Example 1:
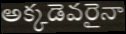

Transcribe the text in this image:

అక్కడెవరైనా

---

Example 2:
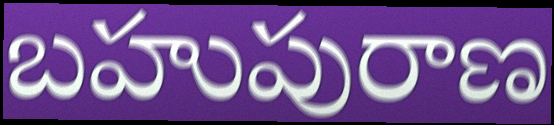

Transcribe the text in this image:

బహుపురాణ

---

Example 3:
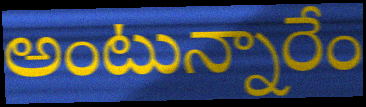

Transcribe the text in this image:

అంటున్నారేం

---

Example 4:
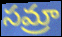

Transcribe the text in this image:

సమ్రా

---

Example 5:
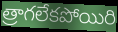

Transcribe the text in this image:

త్రాగలేకపోయిరి